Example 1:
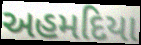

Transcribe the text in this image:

અહમદિયા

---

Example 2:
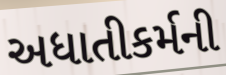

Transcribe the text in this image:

અધાતીકર્મની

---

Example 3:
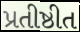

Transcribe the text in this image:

પ્રતીષ્ઠીત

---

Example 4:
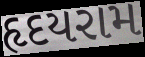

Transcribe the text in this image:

હૃદયરામ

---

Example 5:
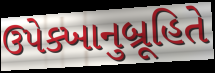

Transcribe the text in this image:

ઉપેક્ખાનુબ્રૂહિતે